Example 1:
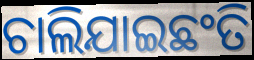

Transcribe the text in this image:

ଚାଲିଯାଇଛଂତି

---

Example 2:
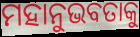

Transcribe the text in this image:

ମହାନୁଭବତାକୁ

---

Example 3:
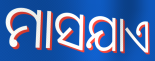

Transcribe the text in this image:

ମାସଯାଏ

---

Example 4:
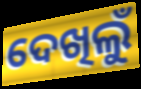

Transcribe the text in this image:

ଦେଖିଲୁଁ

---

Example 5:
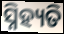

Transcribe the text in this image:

ସ୍ନିହ୍ୟତି